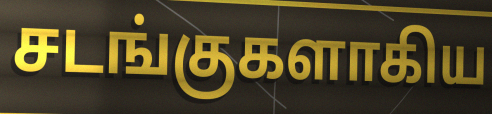
சடங்குகளாகிய